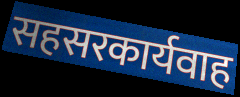
सहसरकार्यवाह